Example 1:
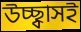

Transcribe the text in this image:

উচ্ছ্বাসই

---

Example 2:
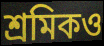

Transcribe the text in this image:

শ্রমিকও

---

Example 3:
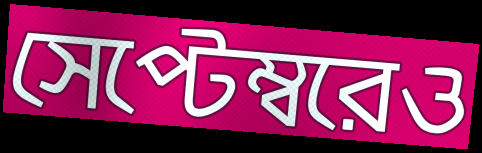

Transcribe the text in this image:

সেপ্টেম্বরেও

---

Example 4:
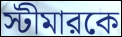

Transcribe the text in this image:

স্টীমারকে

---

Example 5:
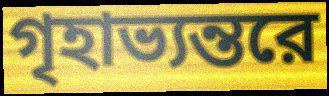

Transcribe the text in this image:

গৃহাভ্যন্তরে